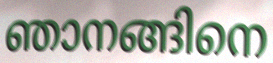
ഞാനങ്ങിനെ